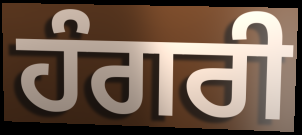
ਹੰਗਰੀ